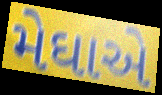
મેઘાએ